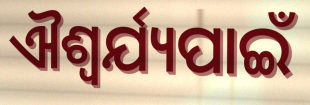
ଐଶ୍ୱର୍ଯ୍ୟପାଇଁ